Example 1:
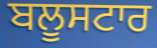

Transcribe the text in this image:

ਬਲੂਸਟਾਰ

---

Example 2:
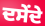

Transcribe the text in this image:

ਦਸੇਂਦੇ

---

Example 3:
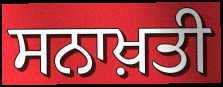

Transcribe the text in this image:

ਸਨਾਖ਼ਤੀ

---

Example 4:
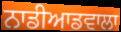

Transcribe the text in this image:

ਨਾਡੀਆਡਵਾਲਾ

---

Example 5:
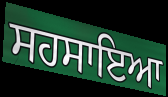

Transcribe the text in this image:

ਸਹਸਾਇਆ